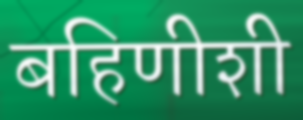
बहिणीशी